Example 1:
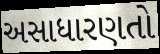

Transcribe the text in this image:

અસાધારણતો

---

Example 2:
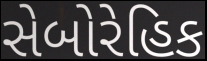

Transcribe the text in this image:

સેબોરેહિક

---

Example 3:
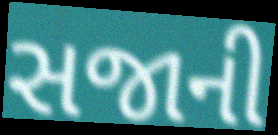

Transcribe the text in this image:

સજાની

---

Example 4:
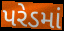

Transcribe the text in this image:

પરેડમાં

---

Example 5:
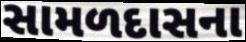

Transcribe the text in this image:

સામળદાસના